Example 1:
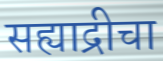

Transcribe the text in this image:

सह्याद्रीचा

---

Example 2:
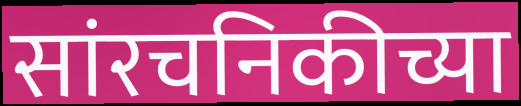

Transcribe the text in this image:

सांरचनिकीच्या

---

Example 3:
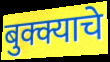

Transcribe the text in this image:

बुक्क्याचे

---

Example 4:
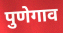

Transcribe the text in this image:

पुणेगाव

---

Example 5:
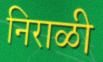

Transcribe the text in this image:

निराळी